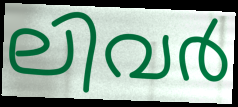
ലിവർ